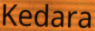
Kedara